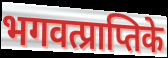
भगवत्प्राप्तिके